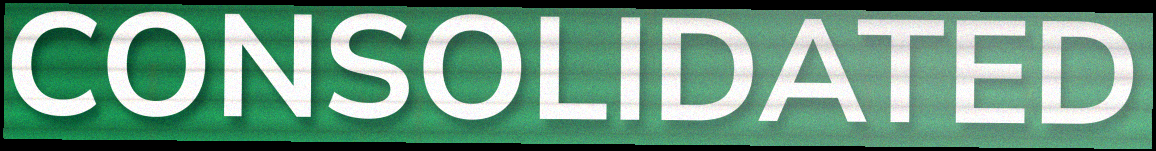
CONSOLIDATED